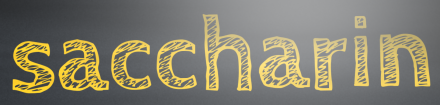
saccharin